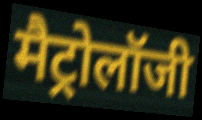
मैट्रोलॉजी